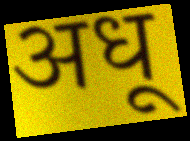
अधू